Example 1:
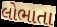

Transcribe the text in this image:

લોભાતા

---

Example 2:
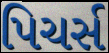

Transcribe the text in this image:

પિચર્સ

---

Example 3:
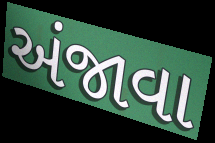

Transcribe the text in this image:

અંજાવા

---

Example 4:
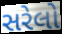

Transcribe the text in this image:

સરેલો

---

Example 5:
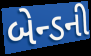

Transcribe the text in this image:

બેન્ડની